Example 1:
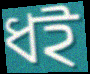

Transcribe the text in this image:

ধই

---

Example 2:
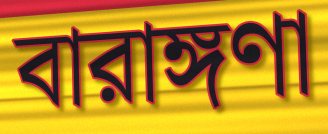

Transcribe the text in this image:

বারাঙ্গণা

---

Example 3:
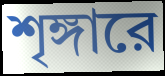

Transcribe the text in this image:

শৃঙ্গারে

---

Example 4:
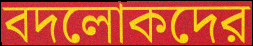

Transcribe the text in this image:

বদলোকদের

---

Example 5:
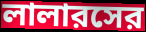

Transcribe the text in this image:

লালারসের